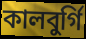
কালবুর্গি